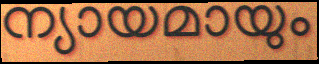
ന്യായമായും